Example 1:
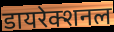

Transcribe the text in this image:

डायरेक्शनल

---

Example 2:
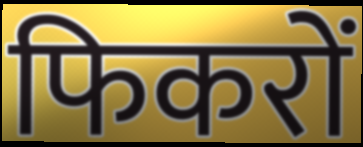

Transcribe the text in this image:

फिकरों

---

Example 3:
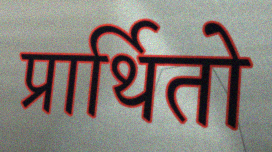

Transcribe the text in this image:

प्रार्थितो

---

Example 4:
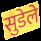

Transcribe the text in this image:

सुडेले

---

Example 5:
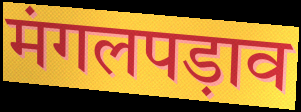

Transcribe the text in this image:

मंगलपड़ाव